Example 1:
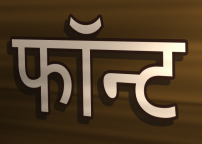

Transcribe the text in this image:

फॉन्ट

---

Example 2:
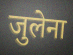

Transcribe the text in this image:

जुलेना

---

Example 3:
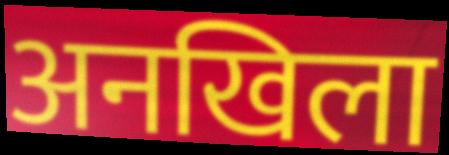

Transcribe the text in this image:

अनखिला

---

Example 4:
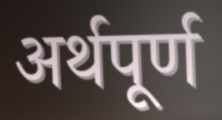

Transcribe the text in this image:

अर्थपूर्ण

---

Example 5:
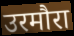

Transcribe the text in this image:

उरमौरा